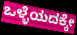
ಒಳ್ಳೆಯದಕ್ಕೇ